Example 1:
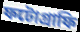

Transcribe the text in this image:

ফটোগ্রাফি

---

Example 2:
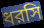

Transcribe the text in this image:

ধরসি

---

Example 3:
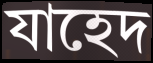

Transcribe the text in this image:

যাহেদ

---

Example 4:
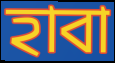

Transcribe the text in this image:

হাবা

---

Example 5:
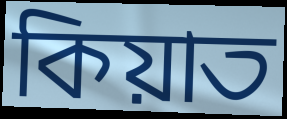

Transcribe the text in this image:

কিয়াত